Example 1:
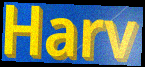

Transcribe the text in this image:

Harv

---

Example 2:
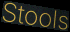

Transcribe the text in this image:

Stools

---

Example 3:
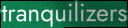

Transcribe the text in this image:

tranquilizers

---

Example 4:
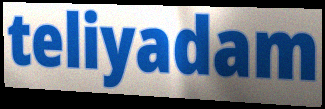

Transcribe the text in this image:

teliyadam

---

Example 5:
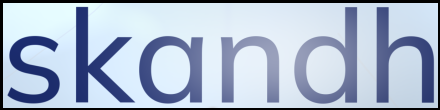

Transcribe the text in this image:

skandh